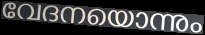
വേദനയൊന്നും